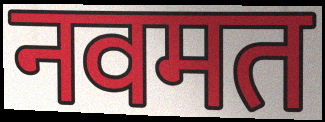
नवमत